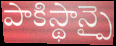
పాకిస్థాన్పై